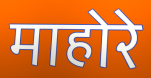
माहोरे